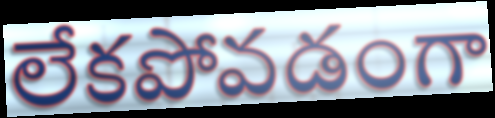
లేకపోవడంగా